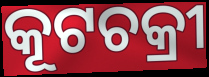
କୂଟଚକ୍ରୀ